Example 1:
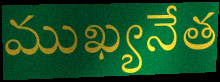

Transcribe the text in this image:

ముఖ్యనేత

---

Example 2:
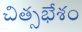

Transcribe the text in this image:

చిత్సభేశం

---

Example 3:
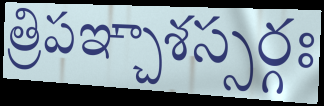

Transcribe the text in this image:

త్రిపఞ్చాశస్సర్గః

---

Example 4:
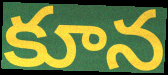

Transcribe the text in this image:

కూన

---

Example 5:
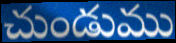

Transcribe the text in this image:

చుండుము